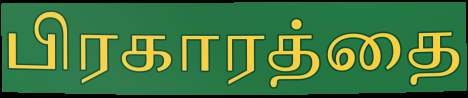
பிரகாரத்தை